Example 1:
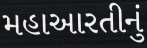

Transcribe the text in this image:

મહાઆરતીનું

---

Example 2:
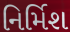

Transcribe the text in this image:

નિર્મિશ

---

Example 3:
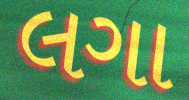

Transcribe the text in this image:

લગા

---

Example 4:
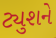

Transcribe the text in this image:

ટ્યુશને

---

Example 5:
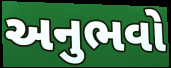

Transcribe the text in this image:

અનુભવો